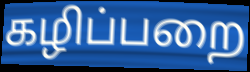
கழிப்பறை